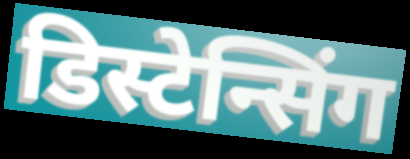
डिस्टेन्सिंग